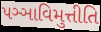
પઞ્ઞાવિમુત્તીતિ